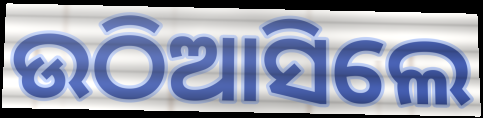
ଉଠିଆସିଲେ